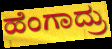
ಹೆಂಗಾದ್ರು